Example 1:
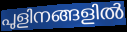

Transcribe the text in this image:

പുളിനങ്ങളിൽ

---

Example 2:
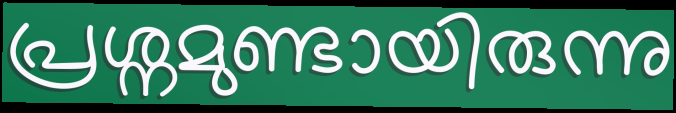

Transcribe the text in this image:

പ്രശ്നമുണ്ടായിരുന്നു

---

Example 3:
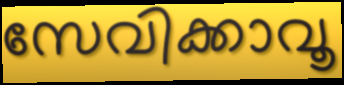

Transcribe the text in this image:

സേവിക്കാവൂ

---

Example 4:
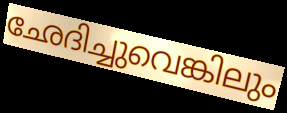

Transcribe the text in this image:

ഛേദിച്ചുവെങ്കിലും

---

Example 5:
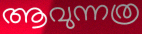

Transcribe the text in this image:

ആവുന്നത്ര